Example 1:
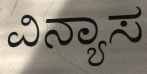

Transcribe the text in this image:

ವಿನ್ಯಾಸ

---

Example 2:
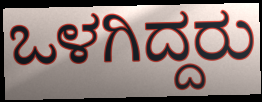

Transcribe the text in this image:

ಒಳಗಿದ್ದರು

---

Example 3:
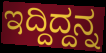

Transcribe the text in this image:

ಇದ್ದಿದ್ದನ್ನ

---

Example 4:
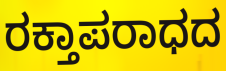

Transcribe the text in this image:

ರಕ್ತಾಪರಾಧದ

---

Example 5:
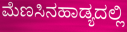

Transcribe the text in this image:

ಮೆಣಸಿನಹಾಡ್ಯದಲ್ಲಿ